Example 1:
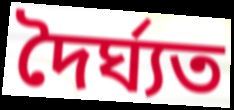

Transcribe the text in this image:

দৈৰ্ঘ্যত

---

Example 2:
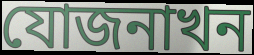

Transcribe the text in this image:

যোজনাখন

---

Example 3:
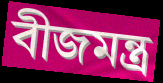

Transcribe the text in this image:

বীজমন্ত্ৰ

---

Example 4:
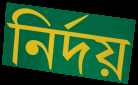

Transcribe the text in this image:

নিৰ্দয়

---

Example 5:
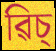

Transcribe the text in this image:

ৱিচ্